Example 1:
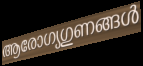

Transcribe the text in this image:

ആരോഗ്യഗുണങ്ങൾ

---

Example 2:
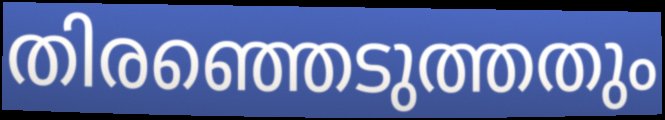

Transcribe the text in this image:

തിരഞ്ഞെടുത്തതും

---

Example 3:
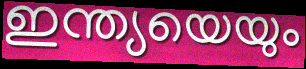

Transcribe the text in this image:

ഇന്ത്യയെയും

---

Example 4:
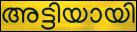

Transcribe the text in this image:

അട്ടിയായി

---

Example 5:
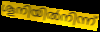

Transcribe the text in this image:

ശൂനിയിൽനിന്ന്